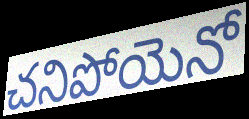
చనిపోయెనో